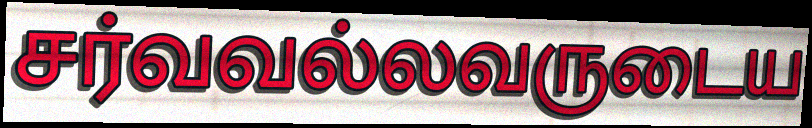
சர்வவல்லவருடைய